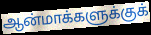
ஆன்மாக்களுக்குக்